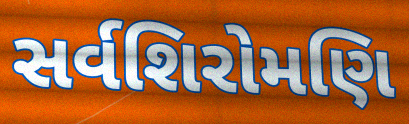
સર્વશિરોમણિ